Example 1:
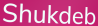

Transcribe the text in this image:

Shukdeb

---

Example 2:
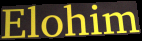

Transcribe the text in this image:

Elohim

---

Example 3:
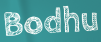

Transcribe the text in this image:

Bodhu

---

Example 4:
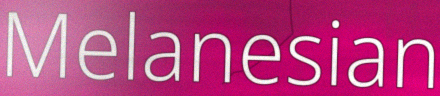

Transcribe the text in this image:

Melanesian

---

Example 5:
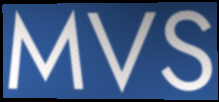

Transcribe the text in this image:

MVS